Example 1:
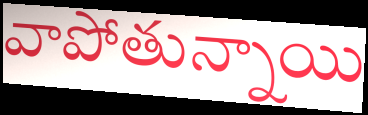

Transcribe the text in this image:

వాపోతున్నాయి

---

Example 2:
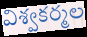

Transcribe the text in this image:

విశ్వకర్మల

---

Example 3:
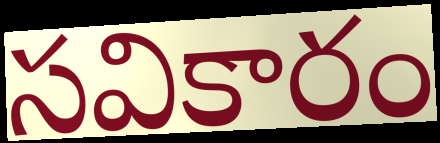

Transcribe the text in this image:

సవికారం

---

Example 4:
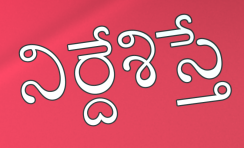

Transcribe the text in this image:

నిర్దేశిస్తే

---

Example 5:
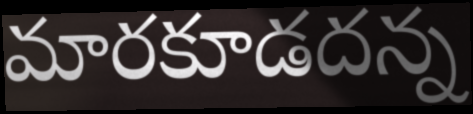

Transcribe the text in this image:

మారకూడదన్న